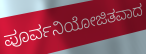
ಪೂರ್ವನಿಯೋಜಿತವಾದ